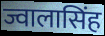
ज्वालासिंह